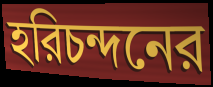
হরিচন্দনের